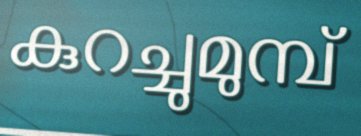
കുറച്ചുമുമ്പ്